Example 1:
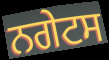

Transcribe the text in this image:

ਨਗੇਟਸ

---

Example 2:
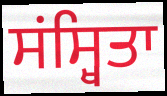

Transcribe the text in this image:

ਸਂਸ੍ਥਿਤਾ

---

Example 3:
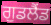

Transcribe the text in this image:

ਗੁਡਲੈਂਡ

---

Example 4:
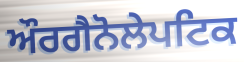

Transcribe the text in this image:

ਔਰਗੈਨੋਲੇਪਟਿਕ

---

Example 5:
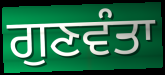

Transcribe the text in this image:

ਗੁਣਵੰਤਾ